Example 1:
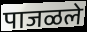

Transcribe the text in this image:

पाजळले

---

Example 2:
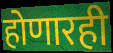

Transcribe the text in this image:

होणारही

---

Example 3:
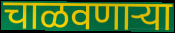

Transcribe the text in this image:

चाळवणाऱ्या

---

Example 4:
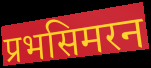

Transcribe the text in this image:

प्रभसिमरन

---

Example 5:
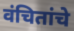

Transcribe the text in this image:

वंचितांचे